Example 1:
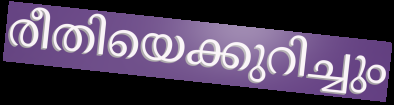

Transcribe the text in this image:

രീതിയെക്കുറിച്ചും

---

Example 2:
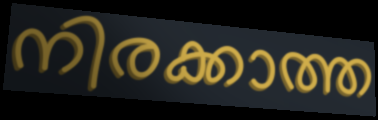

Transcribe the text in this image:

നിരക്കാത്ത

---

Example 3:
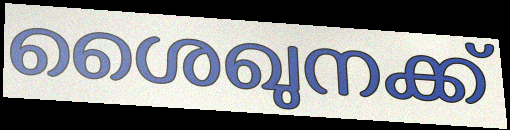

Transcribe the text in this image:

ശൈഖുനക്ക്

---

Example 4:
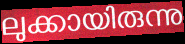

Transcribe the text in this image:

ലുക്കായിരുന്നു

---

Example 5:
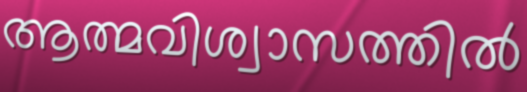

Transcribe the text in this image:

ആത്മവിശ്വാസത്തിൽ